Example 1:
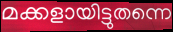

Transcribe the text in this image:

മക്കളായിട്ടുതന്നെ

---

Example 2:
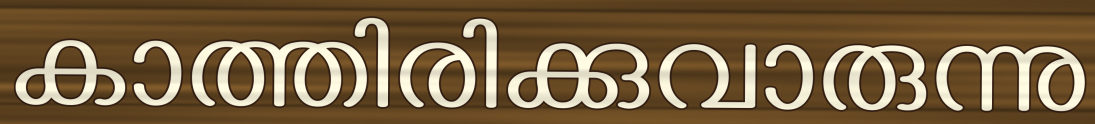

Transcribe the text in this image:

കാത്തിരിക്കുവാരുന്നു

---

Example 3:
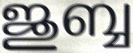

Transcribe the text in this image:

ജുബ്ബ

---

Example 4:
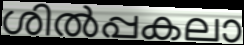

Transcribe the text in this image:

ശിൽപ്പകലാ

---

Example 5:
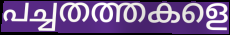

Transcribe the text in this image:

പച്ചതത്തകളെ